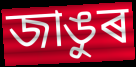
জাঙুৰ